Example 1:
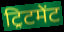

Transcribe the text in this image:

ट्रिटमेंट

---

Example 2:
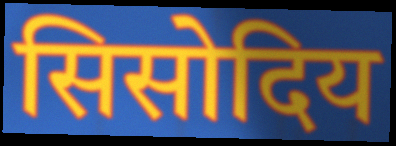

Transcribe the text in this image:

सिसोदिय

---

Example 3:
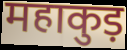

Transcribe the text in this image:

महाकुड़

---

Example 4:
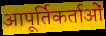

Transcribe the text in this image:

आपूर्तिकर्ताओं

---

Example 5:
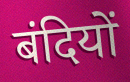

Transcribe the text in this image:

बंदियों